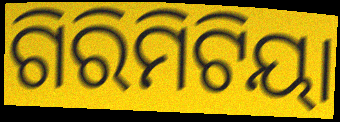
ଗିରିମିଟିୟା